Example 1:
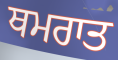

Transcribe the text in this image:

ਥਮਰਾਤ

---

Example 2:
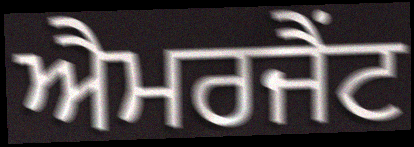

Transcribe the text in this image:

ਐਮਰਜੈਂਟ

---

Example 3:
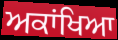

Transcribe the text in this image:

ਅਕਾਂਖਿਆ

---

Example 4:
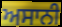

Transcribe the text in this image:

ਅਸਾਨੀ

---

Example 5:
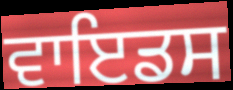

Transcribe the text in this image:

ਵਾਇਡਸ